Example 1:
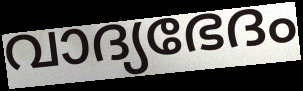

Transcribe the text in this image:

വാദ്യഭേദം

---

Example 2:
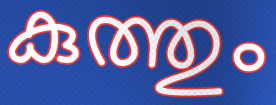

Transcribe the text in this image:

കുത്തും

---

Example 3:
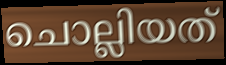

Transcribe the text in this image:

ചൊല്ലിയത്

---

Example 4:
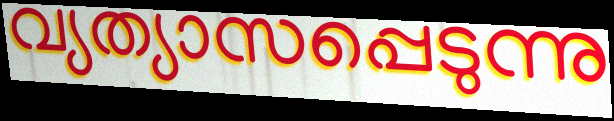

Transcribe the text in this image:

വ്യത്യാസപ്പെടുന്നു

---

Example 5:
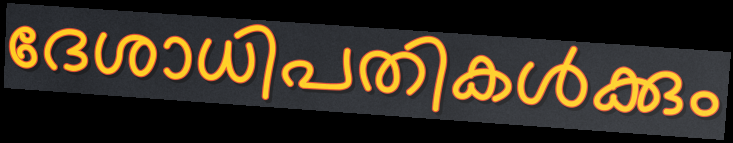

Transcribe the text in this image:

ദേശാധിപതികൾക്കും